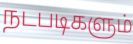
நடபடிகளும்